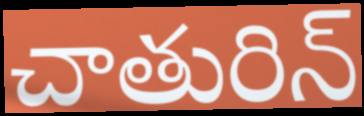
చాతురిన్